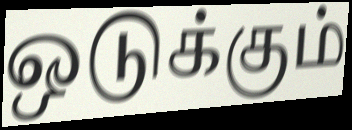
ஒடுக்கும்